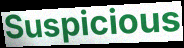
Suspicious